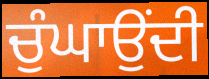
ਚੁੰਘਾਉਂਦੀ